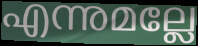
എന്നുമല്ലേ